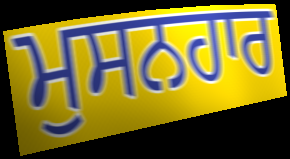
ਮੁਸਨਹਾਰ